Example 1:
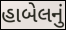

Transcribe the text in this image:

હાબેલનું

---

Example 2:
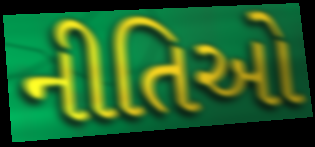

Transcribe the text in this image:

નીતિઓ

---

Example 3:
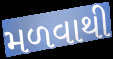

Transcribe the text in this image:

મળવાથી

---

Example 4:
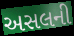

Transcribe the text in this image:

અસલની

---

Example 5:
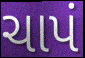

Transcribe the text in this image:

ચાપં